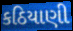
કઠિયાણી